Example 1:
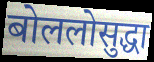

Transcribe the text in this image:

बोललोसुद्धा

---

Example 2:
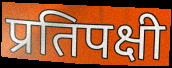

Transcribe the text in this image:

प्रतिपक्षी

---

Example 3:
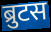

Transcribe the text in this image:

ब्रुटस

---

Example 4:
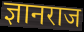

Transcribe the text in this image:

ज्ञानराज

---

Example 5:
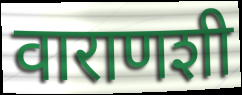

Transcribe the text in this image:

वाराणशी